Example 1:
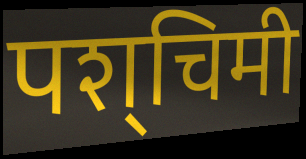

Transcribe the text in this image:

पश्चिमी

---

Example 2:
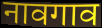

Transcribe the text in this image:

नावगाव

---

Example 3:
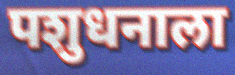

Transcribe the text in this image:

पशुधनाला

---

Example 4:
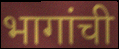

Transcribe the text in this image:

भागांची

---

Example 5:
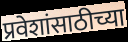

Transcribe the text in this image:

प्रवेशांसाठीच्या